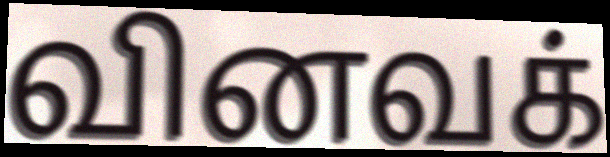
வினவக்